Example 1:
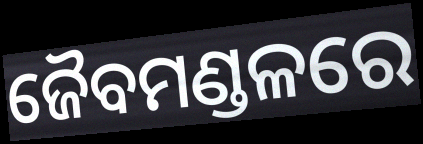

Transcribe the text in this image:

ଜୈବମଣ୍ଡଳରେ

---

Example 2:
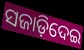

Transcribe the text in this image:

ସଜାଡ଼ିଦେଇ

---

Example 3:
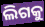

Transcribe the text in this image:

ଲିଗକୁ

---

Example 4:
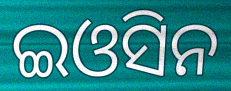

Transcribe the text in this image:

ଇଓସିନ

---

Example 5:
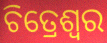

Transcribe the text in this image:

ଚିତ୍ରେଶ୍ୱର